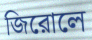
জিরোলে